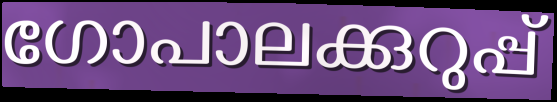
ഗോപാലക്കുറുപ്പ്